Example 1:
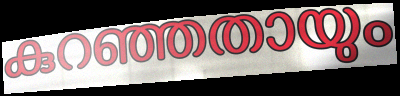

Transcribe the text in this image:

കുറഞ്ഞതായും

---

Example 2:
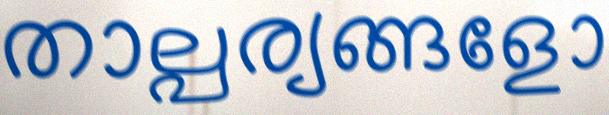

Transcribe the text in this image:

താല്പര്യങ്ങളോ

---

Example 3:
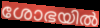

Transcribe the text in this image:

ശോഭയിൽ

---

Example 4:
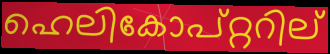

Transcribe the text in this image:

ഹെലികോപ്റ്ററില്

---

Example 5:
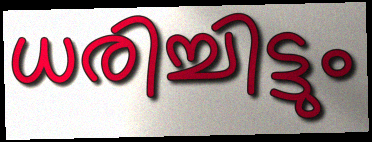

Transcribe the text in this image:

ധരിച്ചിട്ടും